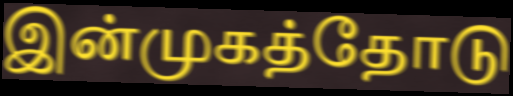
இன்முகத்தோடு